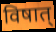
विषात्